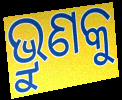
ଭ୍ରୁଣକୁ